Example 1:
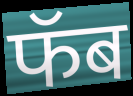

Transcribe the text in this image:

फॅब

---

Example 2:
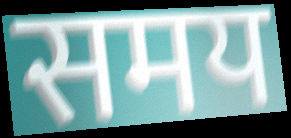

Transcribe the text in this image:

समय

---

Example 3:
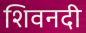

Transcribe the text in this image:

शिवनदी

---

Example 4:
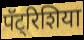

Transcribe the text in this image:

पॅट्रिशिया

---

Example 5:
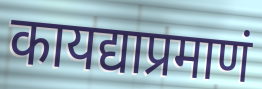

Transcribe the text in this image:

कायद्याप्रमाणं